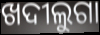
ଖଦୀଲୁଗା